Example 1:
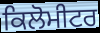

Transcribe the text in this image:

ਕਿਲੋਮੀਟਰ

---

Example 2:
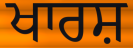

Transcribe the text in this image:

ਖਾਰਸ਼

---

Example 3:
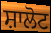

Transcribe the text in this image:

ਸ਼ਾਲੋਟ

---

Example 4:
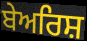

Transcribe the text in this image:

ਬੇਅਰਿਸ਼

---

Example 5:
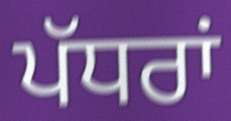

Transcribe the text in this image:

ਪੱਧਰਾਂ